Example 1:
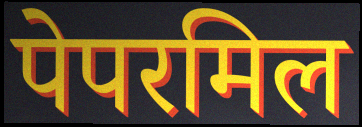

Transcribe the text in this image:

पेपरमिल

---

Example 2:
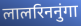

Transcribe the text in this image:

लालरिननुंगा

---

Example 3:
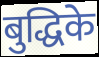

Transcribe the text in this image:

बुद्धिके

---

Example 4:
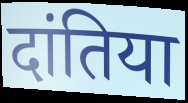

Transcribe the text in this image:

दांतिया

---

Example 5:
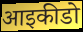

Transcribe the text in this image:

आइकीडो